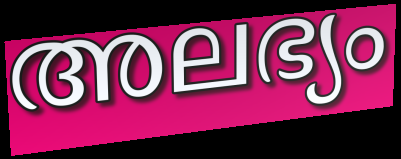
അലഭ്യം